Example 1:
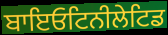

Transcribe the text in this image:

ਬਾਇਓਟਿਨੀਲੇਟਿਡ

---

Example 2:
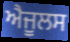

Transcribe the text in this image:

ਐਜੂਲਸ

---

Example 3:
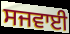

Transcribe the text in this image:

ਸਜਵਾਈ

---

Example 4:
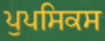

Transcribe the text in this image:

ਪੁਪਸਿਕਸ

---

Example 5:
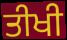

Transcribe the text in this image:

ਤੀਖੀ